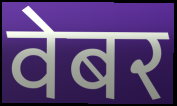
वेबर